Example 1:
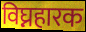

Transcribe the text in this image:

विघ्नहारक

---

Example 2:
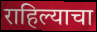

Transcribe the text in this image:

राहिल्याचा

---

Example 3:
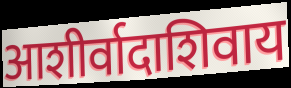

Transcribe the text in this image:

आशीर्वादाशिवाय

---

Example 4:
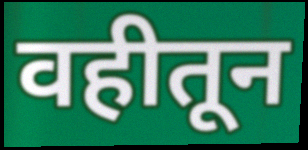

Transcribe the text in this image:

वहीतून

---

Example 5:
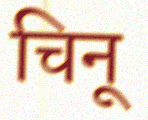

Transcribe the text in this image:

चिनू